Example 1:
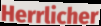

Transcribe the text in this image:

Herrlicher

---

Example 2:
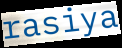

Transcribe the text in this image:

rasiya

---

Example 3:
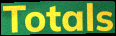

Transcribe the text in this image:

Totals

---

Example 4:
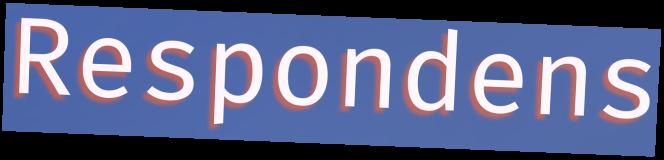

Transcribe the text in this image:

Respondens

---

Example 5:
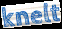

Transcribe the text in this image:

knelt